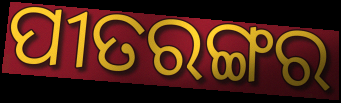
ପୀତରଙ୍ଗର